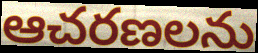
ఆచరణలను